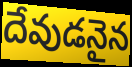
దేవుడనైన